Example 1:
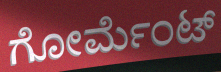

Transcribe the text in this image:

ಗೋರ್ಮೆಂಟ್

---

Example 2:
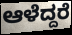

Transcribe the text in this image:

ಆಳೆದ್ದರೆ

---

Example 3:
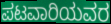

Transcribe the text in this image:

ಪಟವಾರಿಯವರ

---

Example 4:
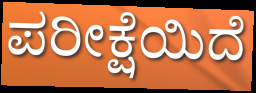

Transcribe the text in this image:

ಪರೀಕ್ಷೆಯಿದೆ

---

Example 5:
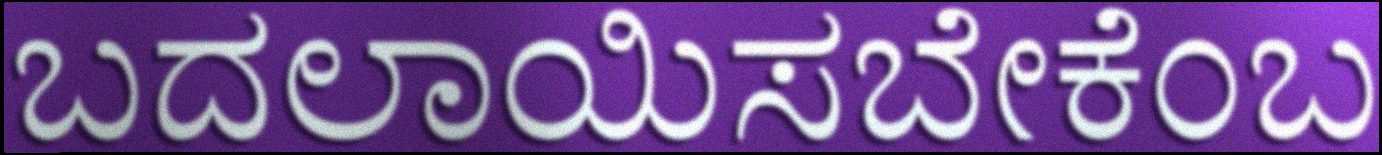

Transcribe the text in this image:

ಬದಲಾಯಿಸಬೇಕೆಂಬ